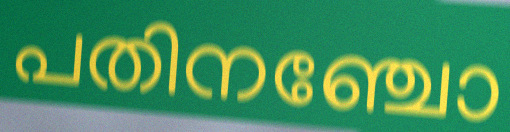
പതിനഞ്ചോ